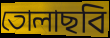
তোলাছবি